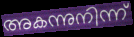
അകന്നുനിന്ന്